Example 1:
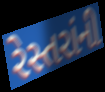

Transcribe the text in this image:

રેસ્તરાંની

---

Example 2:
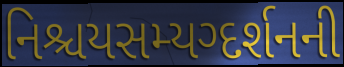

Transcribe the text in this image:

નિશ્ચયસમ્યગ્દર્શનની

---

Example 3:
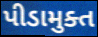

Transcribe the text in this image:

પીડામુક્ત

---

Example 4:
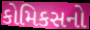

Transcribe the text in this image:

કોમિકસનો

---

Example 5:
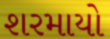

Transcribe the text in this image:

શરમાયો